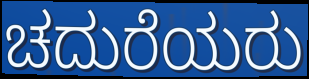
ಚದುರೆಯರು